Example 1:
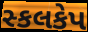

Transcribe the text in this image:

સ્કલકેપ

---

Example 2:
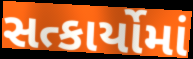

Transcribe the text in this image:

સત્કાર્યોમાં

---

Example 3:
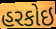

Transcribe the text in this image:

હરકોઇ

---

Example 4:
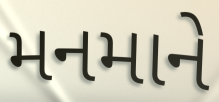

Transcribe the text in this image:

મનમાને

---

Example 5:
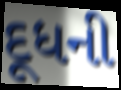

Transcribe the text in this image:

દૂધની